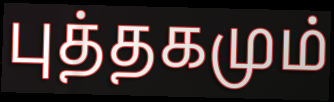
புத்தகமும்